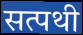
सत्पथी